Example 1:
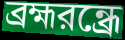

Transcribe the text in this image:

ব্রহ্মরন্ধ্রে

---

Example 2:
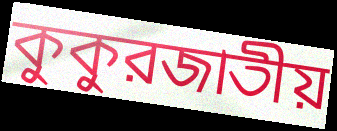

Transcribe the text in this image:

কুকুরজাতীয়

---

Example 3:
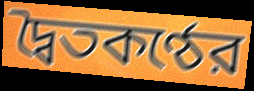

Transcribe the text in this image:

দ্বৈতকণ্ঠের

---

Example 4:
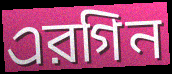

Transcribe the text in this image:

এরগিন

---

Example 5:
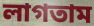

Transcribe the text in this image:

লাগতাম